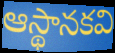
ఆస్థానకవి